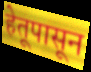
हेतूपासून